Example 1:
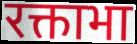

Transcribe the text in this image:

रक्ताभा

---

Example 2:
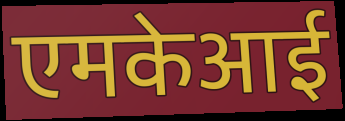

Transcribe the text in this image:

एमकेआई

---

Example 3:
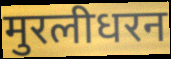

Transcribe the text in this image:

मुरलीधरन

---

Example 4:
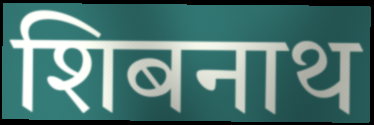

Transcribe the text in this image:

शिबनाथ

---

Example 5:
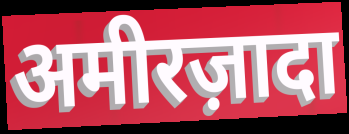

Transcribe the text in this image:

अमीरज़ादा